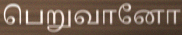
பெறுவானோ